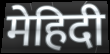
मेहिदी